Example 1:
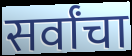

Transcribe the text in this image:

सर्वांचा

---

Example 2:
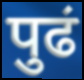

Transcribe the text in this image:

पुढं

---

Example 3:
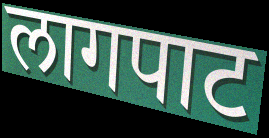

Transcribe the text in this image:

लागपाट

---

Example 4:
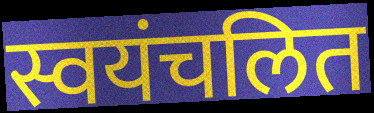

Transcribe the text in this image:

स्वयंचलित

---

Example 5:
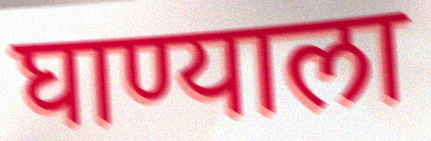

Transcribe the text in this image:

घाण्याला